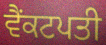
ਵੈਂਕਟਪਤੀ